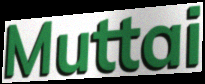
Muttai